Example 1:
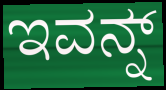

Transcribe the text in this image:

ಇವನ್ನ್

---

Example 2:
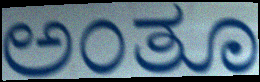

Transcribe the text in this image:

ಅಂತೂ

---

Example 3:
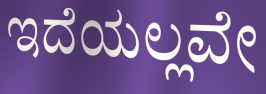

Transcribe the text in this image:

ಇದೆಯಲ್ಲವೇ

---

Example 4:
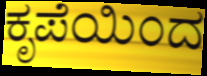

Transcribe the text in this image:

ಕೃಪೆಯಿಂದ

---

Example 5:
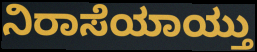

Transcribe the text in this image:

ನಿರಾಸೆಯಾಯ್ತು